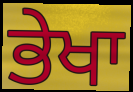
ਭੇਖਾ